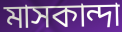
মাসকান্দা